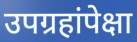
उपग्रहांपेक्षा